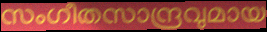
സംഗീതസാന്ദ്രവുമായ